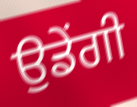
ਉਡੇਂਗੀ